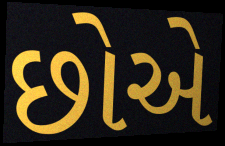
છોએ